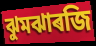
ঝুমঝাৰজি